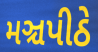
મઞ્ચપીઠે